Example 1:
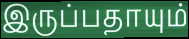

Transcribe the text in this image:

இருப்பதாயும்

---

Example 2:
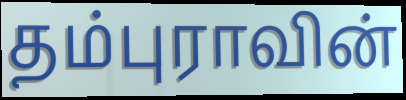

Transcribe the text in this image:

தம்புராவின்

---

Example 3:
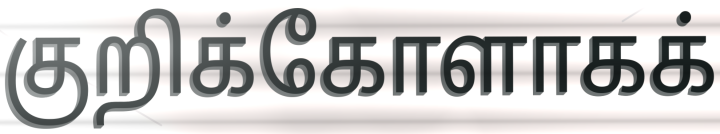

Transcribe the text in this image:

குறிக்கோளாகக்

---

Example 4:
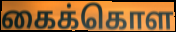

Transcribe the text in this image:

கைக்கொள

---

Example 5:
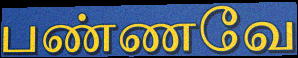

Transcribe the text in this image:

பண்ணவே